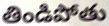
తిండిపోతు